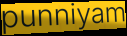
punniyam